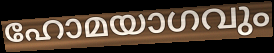
ഹോമയാഗവും